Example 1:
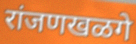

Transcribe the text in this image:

रांजणखळगे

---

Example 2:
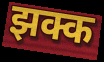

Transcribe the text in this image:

झक्क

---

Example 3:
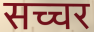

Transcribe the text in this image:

सच्चर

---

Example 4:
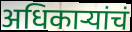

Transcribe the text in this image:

अधिकाऱ्यांचं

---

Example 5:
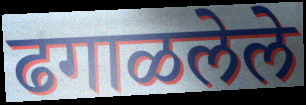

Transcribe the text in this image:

ढगाळलेले